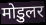
मोडुलर